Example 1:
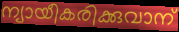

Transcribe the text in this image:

ന്യായീകരിക്കുവാന്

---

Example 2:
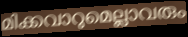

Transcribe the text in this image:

മിക്കവാറുമെല്ലാവരും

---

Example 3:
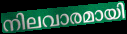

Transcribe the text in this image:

നിലവാരമായി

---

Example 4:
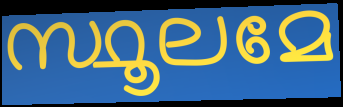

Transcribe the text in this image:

സ്ഥൂലമേ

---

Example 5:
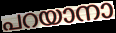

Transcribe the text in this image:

പറയാനാ